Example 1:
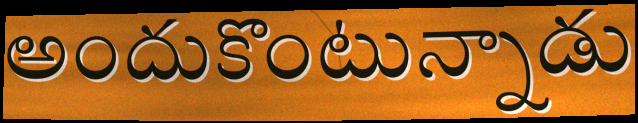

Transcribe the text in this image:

అందుకొంటున్నాడు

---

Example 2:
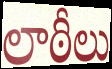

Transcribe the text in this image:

లాఠీలు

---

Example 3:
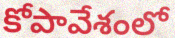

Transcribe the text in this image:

కోపావేశంలో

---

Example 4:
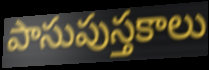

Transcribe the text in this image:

పాసుపుస్తకాలు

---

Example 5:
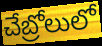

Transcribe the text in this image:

చేబ్రోలులో